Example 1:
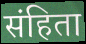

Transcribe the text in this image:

संहिता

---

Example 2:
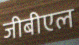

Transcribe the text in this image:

जीबीएल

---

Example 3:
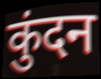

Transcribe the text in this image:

कुंदन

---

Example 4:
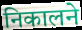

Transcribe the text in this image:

निकालने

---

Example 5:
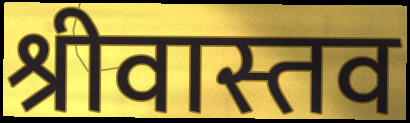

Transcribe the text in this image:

श्रीवास्‍तव